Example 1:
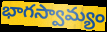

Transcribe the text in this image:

భాగస్వామ్యం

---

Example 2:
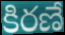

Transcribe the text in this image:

కిరణే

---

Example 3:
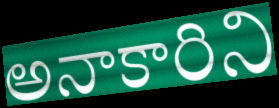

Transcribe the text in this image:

అనాకారిని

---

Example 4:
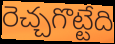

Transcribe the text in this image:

రెచ్చగొట్టేది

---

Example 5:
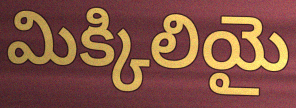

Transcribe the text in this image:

మిక్కిలియై